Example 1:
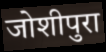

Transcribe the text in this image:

जोशीपुरा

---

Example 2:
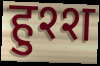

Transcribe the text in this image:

हुश्श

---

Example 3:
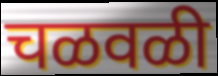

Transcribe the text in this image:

चळवळी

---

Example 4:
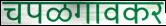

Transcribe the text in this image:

चपळगावकर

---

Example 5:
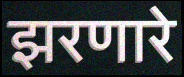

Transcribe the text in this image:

झरणारे